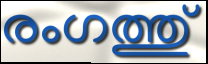
രംഗത്തു്